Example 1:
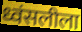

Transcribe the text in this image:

ध्वंसलीला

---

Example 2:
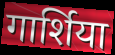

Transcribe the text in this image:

गार्शिया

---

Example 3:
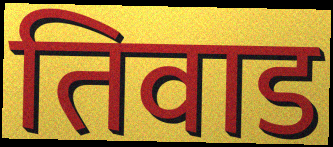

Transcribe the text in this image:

तिवाड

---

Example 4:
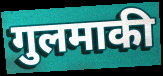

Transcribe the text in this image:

गुलमाकी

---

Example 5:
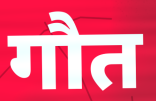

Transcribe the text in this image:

गौत